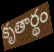
కృతార్థం